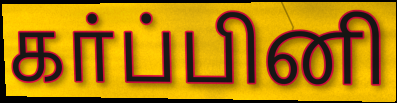
கர்ப்பினி